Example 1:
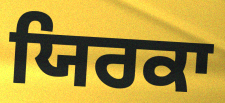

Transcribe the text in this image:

ਯਿਰਕਾ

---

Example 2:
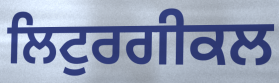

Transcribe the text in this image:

ਲਿਟੁਰਗੀਕਲ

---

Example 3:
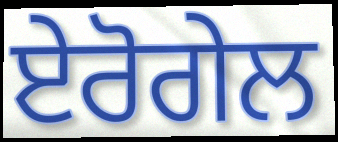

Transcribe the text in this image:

ਏਰੋਗੇਲ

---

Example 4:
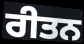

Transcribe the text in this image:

ਰੀਤਨ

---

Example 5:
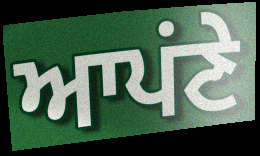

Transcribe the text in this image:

ਆਪਂਣੇ